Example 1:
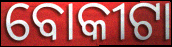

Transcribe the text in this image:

ବୋକୀଟା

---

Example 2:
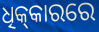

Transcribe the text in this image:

ଧିକ୍‌କାରରେ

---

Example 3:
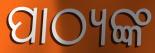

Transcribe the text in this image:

ପାଠ୍ୟଙ୍କ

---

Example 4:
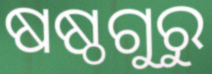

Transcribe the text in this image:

ଷଷ୍ଠଗୁରୁ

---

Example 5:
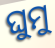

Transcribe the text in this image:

ଘୁମୁ